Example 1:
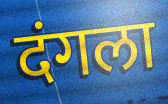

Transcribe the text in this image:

दंगला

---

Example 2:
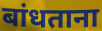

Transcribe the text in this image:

बांधताना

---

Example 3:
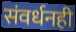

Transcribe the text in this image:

संवर्धनही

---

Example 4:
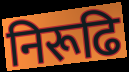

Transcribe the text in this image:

निरूढि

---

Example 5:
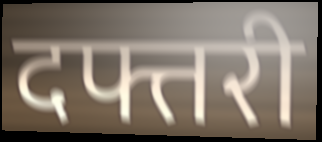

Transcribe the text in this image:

दफ्तरी